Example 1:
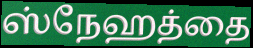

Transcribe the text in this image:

ஸ்நேஹத்தை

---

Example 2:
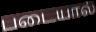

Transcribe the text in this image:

படையால்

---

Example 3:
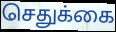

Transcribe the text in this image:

செதுக்கை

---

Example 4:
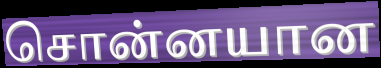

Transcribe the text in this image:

சொன்னயான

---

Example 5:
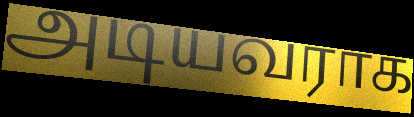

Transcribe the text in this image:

அடியவராக